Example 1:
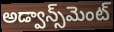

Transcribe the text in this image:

అడ్వాన్స్‌మెంట్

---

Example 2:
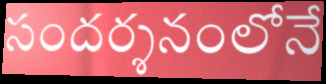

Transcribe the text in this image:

సందర్శనంలోనే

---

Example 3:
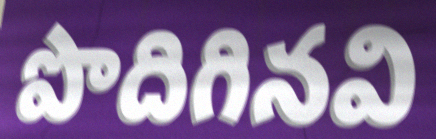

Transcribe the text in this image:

పొదిగినవి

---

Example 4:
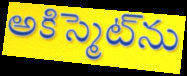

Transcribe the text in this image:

అకిస్మెట్‌ను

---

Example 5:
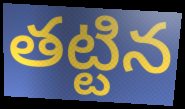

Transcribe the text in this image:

తట్టిన